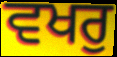
ਵਖਰੁ